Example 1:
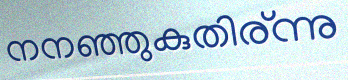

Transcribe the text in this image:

നനഞ്ഞുകുതിര്ന്നു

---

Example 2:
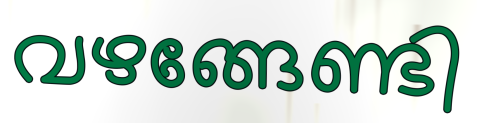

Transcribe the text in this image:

വഴങ്ങേണ്ടി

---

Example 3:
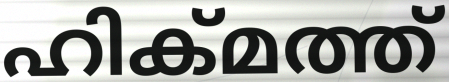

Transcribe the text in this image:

ഹിക്മത്ത്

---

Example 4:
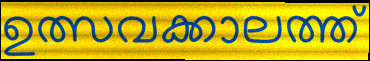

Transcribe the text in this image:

ഉത്സവക്കാലത്ത്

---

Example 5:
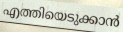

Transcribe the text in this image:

എത്തിയെടുക്കാൻ